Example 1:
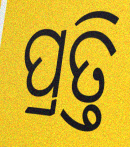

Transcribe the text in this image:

ପ୍ରତ୍ତି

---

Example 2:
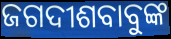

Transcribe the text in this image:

ଜଗଦୀଶବାବୁଙ୍କ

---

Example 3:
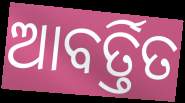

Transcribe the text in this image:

ଆବର୍ତ୍ତିତ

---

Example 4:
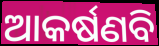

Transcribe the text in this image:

ଆକର୍ଷଣବି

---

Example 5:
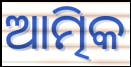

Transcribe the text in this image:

ଆତ୍ମିକ